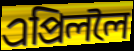
এপ্ৰিললৈ